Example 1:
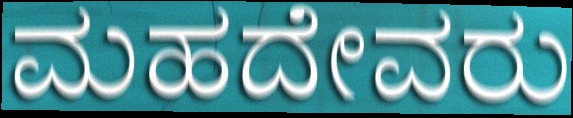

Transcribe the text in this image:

ಮಹದೇವರು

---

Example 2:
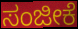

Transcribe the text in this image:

ಸಂಜೀಕೆ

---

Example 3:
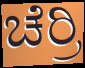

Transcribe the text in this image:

ಚೆರ‍್ರಿ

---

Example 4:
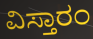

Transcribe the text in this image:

ವಿಸ್ತಾರಂ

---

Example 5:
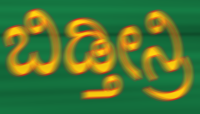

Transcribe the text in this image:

ಬಿಡ್ತೀನ್ರಿ